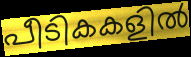
പീടികകളിൽ